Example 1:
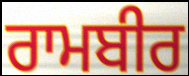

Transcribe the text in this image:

ਰਾਮਬੀਰ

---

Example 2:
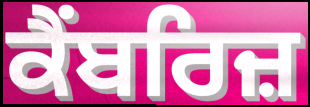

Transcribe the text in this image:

ਕੈਂਬਰਿਜ਼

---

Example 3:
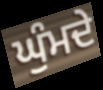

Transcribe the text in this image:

ਘੁੰਮਦੇ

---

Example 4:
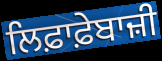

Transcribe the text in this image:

ਲਿਫ਼ਾਫ਼ੇਬਾਜ਼ੀ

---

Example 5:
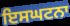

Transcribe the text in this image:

ਇਸਘਟਨਾ